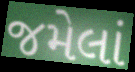
જમેલાં